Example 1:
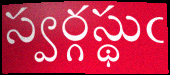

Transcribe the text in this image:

స్వర్గస్థుఁ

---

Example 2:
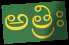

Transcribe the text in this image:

అత్రిః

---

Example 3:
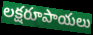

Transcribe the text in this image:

లక్షరూపాయలు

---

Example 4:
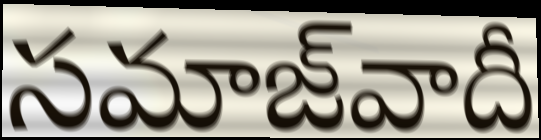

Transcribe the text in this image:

సమాజ్‌వాదీ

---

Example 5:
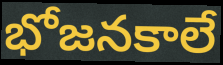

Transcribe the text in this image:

భోజనకాలే